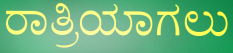
ರಾತ್ರಿಯಾಗಲು